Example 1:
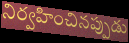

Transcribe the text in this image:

నిర్వహించినప్పుడు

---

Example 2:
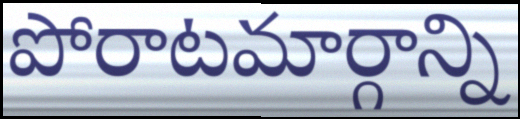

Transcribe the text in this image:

పోరాటమార్గాన్ని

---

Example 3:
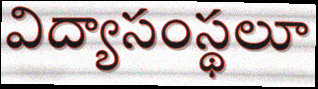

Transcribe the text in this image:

విద్యాసంస్థలూ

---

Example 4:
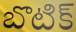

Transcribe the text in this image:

బొటిక్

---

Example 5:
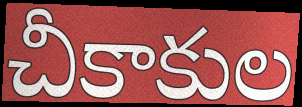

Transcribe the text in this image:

చీకాకుల